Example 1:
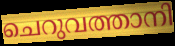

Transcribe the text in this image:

ചെറുവത്താനി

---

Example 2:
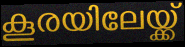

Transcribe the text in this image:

കൂരയിലേയ്ക്ക്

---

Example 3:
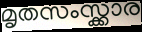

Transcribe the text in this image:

മൃതസംസ്ക്കാര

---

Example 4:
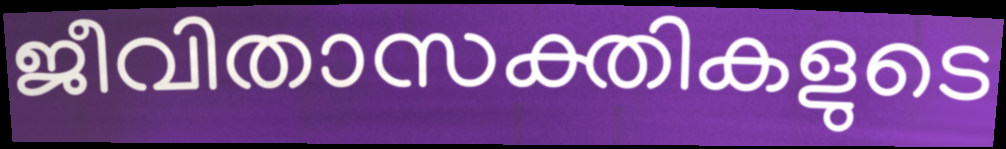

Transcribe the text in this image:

ജീവിതാസക്തികളുടെ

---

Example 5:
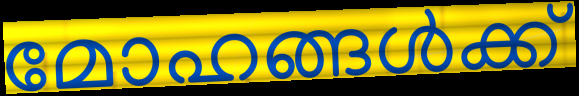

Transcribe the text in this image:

മോഹങ്ങൾക്ക്